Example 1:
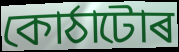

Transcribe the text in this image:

কোঠাটোৰ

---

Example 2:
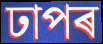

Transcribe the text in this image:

ঢাপৰ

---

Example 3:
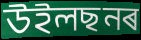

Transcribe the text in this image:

উইলছনৰ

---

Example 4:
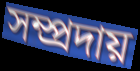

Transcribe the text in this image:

সম্প্ৰদায়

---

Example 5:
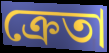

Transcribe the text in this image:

ক্ৰেতা